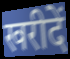
खरीदें